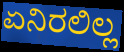
ಏನಿರಲಿಲ್ಲ